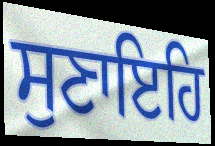
ਸੁਣਾਇਹਿ